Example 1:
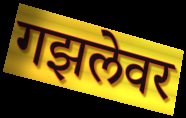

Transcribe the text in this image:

गझलेवर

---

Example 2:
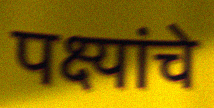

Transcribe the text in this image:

पक्ष्यांचे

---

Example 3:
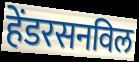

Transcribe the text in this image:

हेंडरसनविल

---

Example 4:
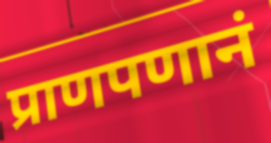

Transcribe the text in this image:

प्राणपणानं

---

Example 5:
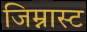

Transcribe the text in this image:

जिम्नास्ट